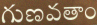
గుణవతాం